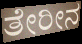
ತೇರೀನ